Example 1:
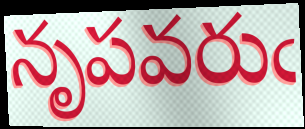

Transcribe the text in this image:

నృపవరుఁ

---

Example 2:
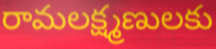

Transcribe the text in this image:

రామలక్ష్మణులకు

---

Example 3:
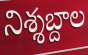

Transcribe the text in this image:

నిశ్శబ్దాల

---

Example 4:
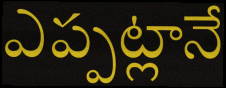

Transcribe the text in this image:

ఎప్పట్లానే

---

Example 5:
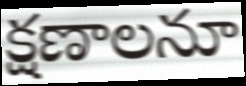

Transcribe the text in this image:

క్షణాలనూ